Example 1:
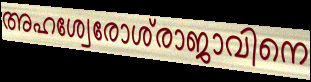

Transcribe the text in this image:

അഹശ്വേരോശ്‌രാജാവിനെ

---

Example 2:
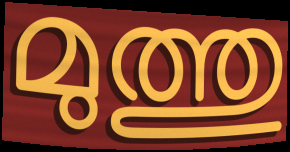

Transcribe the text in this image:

മുത്തു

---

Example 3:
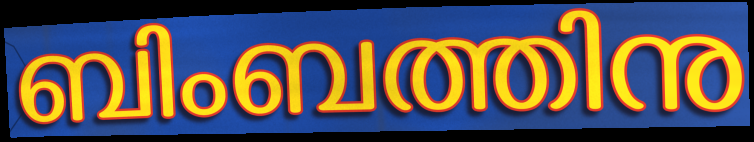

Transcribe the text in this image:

ബിംബത്തിനു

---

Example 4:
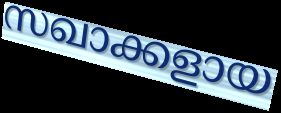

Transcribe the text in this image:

സഖാക്കളായ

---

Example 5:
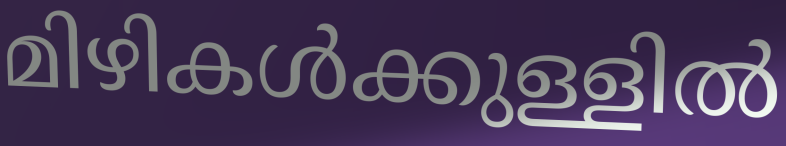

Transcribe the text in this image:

മിഴികൾക്കുള്ളിൽ